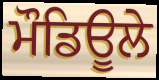
ਮੌਡਿਊਲੇ